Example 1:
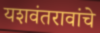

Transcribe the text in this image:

यशवंतरावांचे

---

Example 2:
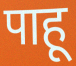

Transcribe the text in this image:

पाहू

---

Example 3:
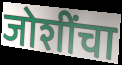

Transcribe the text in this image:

जोशींचा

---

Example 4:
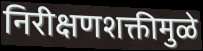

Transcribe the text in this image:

निरीक्षणशक्तीमुळे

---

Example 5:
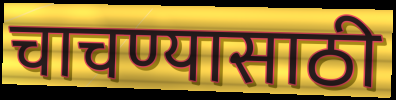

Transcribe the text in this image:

चाचण्यासाठी